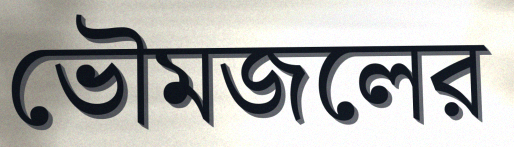
ভৌমজলের